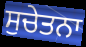
ਸੁਚੇਤਨਾ